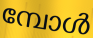
മ്പോൾ